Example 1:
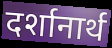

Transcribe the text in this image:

दर्शानार्थ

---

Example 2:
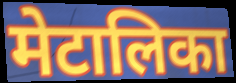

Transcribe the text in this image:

मेटालिका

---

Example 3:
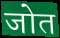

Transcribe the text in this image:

जोत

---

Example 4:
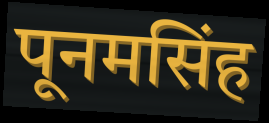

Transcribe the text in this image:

पूनमसिंह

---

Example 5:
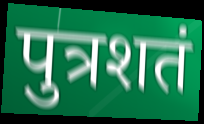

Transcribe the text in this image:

पुत्रशतं